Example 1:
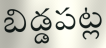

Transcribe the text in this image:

బిడ్డపట్ల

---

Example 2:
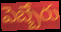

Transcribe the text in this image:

పెబ్బేరు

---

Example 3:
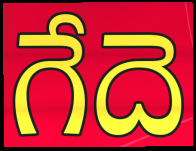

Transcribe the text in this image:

గేదె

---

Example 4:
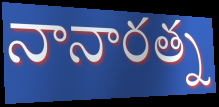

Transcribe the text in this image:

నానారత్న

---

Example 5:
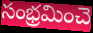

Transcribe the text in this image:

సంభ్రమించె